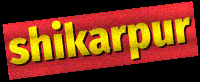
shikarpur